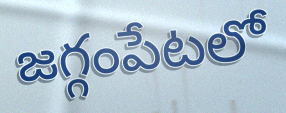
జగ్గంపేటలో